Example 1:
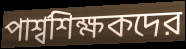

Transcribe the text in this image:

পার্শ্বশিক্ষকদের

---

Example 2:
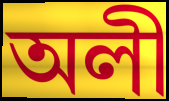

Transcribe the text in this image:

অলী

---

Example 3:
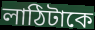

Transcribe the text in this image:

লাঠিটাকে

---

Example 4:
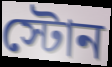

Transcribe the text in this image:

স্টোন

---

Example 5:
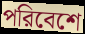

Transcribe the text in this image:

পরিবেশে